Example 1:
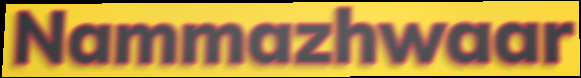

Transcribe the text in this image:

Nammazhwaar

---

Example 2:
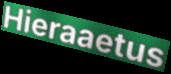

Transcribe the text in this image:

Hieraaetus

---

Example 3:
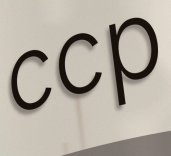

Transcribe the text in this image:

ccp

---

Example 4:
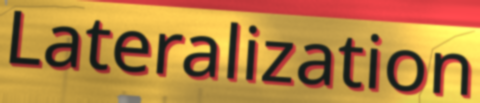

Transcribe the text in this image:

Lateralization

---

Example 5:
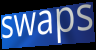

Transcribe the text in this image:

swaps